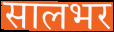
सालभर